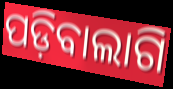
ପଡ଼ିବାଲାଗି